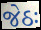
જેઠઃ